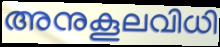
അനുകൂലവിധി